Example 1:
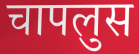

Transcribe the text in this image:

चापलुस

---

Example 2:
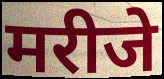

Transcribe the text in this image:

मरीजे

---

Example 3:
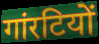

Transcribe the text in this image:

गांरटियों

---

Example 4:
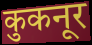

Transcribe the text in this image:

कुकनूर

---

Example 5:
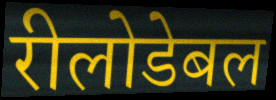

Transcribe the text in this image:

रीलोडेबल